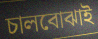
চালবোঝাই